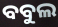
ବବୁଲ